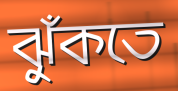
ঝুঁকতে